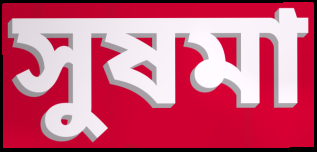
সুষমা